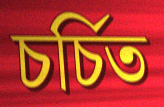
চর্চিত